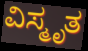
ವಿಸ್ಮೃತ